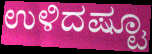
ಉಳಿದಷ್ಟೂ